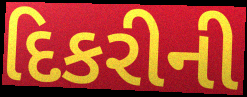
દિકરીની